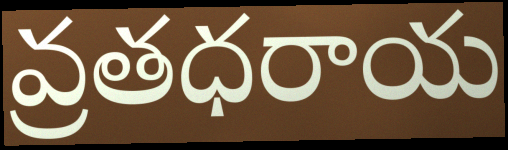
వ్రతధరాయ